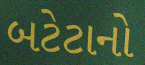
બટેટાનો